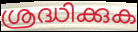
ശ്രദ്ധിക്കുക